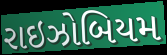
રાઇઝોબિયમ